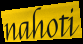
nahoti